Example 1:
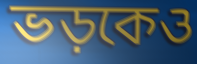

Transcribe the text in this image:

ভড়কেও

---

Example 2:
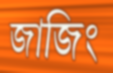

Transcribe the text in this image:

জাজিং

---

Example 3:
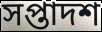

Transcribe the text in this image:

সপ্তাদশ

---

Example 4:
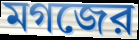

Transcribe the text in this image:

মগজের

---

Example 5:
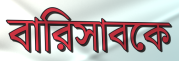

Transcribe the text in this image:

বারিসাবকে